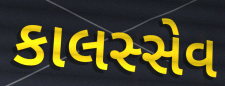
કાલસ્સેવ